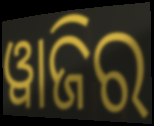
ୱାଜିର